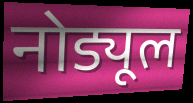
नोड्यूल